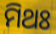
ମିଥଃ